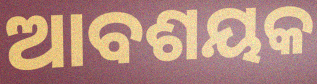
ଆବଶୟକ